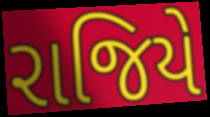
રાજિયે